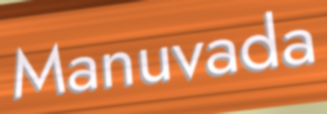
Manuvada